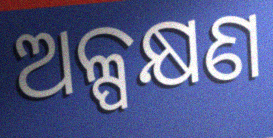
ଅଳ୍ପକ୍ଷଣ